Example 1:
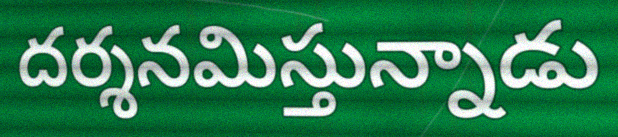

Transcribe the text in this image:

దర్శనమిస్తున్నాడు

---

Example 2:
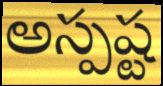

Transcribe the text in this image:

అస్పష్ట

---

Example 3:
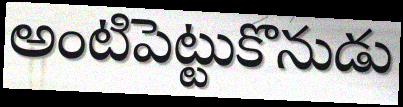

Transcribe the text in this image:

అంటిపెట్టుకొనుడు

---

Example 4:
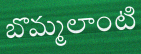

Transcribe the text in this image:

బొమ్మలాంటి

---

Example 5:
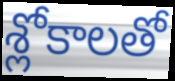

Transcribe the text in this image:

శ్లోకాలతో